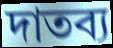
দাতব্য